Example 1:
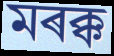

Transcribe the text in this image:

মৰক্ক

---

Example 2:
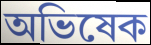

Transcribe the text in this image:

অভিষেক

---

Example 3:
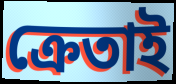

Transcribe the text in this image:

ক্ৰেতাই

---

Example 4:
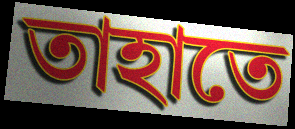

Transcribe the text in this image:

তাহাতে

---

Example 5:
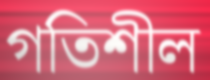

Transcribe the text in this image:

গতিশীল